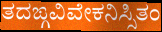
ತದಙ್ಗವಿವೇಕನಿಸ್ಸಿತಂ